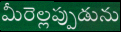
మీరెల్లప్పుడును